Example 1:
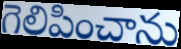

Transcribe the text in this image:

గెలిపించాను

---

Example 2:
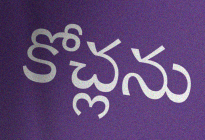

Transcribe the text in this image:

కోచ్లను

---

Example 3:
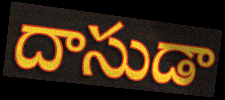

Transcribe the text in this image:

దాసుడా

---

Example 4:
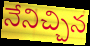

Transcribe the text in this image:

నేనిచ్చిన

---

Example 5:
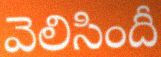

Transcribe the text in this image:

వెలిసిందీ